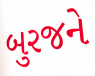
બુરજને